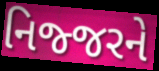
નિજ્જરને